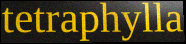
tetraphylla